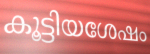
കൂട്ടിയശേഷം